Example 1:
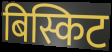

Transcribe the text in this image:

बिस्किट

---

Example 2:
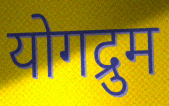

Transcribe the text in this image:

योगद्रुम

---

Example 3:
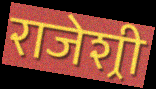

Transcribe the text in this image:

राजेश्री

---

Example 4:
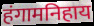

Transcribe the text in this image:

हंगामनिहाय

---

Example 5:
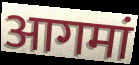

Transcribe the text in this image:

आगमां